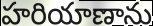
హరియాణాను